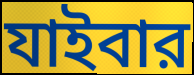
যাইবার